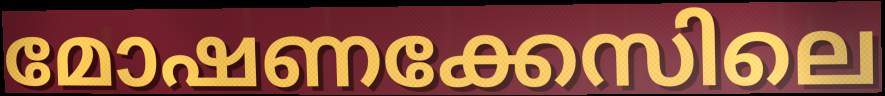
മോഷണക്കേസിലെ